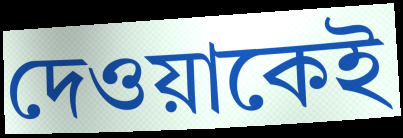
দেওয়াকেই